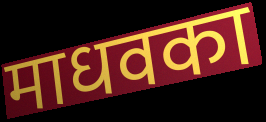
माधवका